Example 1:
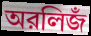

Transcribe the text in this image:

অরলিজঁ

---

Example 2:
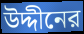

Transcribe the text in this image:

উদ্দীনের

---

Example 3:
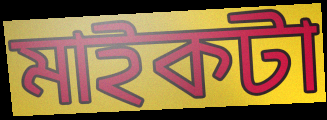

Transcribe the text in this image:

মাইকটা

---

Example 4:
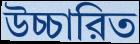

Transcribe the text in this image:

উচ্চারিত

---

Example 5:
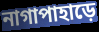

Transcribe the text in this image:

নাগাপাহাড়ে